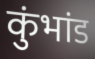
कुंभांड